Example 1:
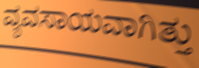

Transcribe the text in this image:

ವ್ಯವಸಾಯವಾಗಿತ್ತು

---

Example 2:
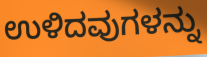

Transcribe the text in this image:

ಉಳಿದವುಗಳನ್ನು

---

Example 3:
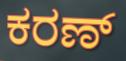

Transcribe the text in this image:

ಕರಣ್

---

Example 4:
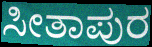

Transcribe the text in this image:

ಸೀತಾಪುರ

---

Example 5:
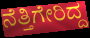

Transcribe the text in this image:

ನೆತ್ತಿಗೇರಿದ್ದ